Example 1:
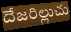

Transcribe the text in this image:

దేజరిల్లుచు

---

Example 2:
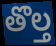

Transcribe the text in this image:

తొల్త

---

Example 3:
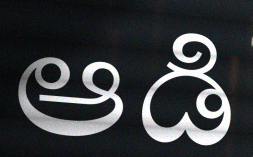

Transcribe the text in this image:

ఆడి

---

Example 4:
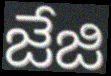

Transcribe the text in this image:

జేజి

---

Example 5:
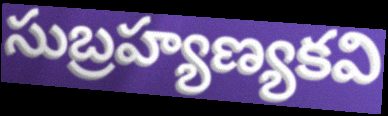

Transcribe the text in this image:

సుబ్రహ్యణ్యకవి